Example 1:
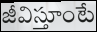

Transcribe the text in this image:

జీవిస్తూంటే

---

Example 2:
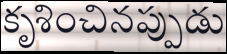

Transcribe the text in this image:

కృశించినప్పుడు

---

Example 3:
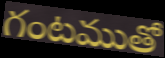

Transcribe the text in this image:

గంటముతో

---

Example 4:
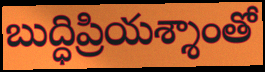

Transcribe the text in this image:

బుద్ధిప్రియశ్శాంతో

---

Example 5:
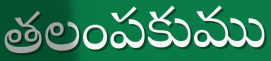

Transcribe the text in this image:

తలంపకుము